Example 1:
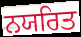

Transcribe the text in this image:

ਨਯਰਿਤ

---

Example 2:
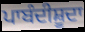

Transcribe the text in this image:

ਪਾਬੰਦੀਸ਼ੂਦਾ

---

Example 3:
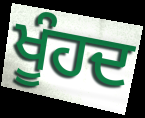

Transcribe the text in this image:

ਖੂੰਹਦ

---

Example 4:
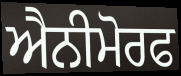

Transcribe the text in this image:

ਐਨੀਮੋਰਫ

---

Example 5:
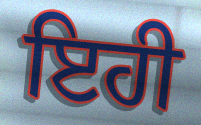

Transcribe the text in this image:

ਇਹੀ